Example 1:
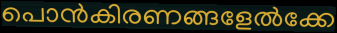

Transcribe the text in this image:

പൊൻകിരണങ്ങളേൽക്കേ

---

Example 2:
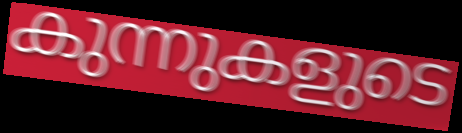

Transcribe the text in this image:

കുന്നുകളുടെ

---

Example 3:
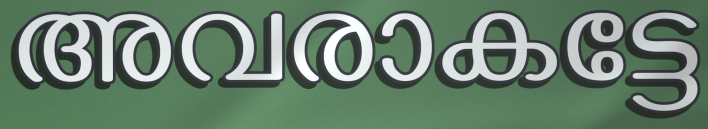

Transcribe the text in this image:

അവരാകട്ടേ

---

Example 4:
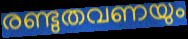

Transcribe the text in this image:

രണ്ടുതവണയും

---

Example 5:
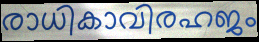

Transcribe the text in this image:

രാധികാവിരഹജം